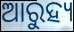
ଆରୁହ୍ୟ